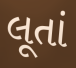
લૂતાં